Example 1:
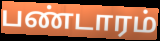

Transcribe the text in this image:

பண்டாரம்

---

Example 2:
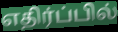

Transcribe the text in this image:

எதிர்ப்பில்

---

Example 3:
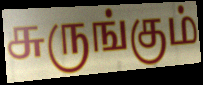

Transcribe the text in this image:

சுருங்கும்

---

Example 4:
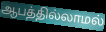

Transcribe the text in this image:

ஆபத்தில்லாமல்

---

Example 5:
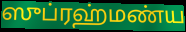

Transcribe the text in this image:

ஸுப்ரஹ்மண்ய